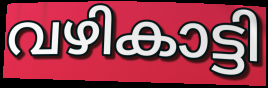
വഴികാട്ടി